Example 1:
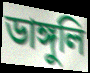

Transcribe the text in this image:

ডাঙ্গুলি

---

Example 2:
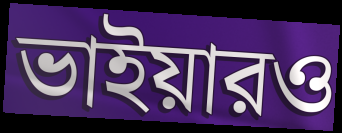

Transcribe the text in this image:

ভাইয়ারও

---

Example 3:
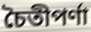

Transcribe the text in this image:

চৈতীপর্ণা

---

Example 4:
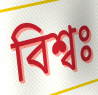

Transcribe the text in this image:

বিশ্বঃ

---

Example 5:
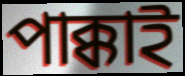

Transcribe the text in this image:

পাক্কাই